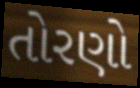
તોરણો